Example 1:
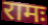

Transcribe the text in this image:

रामः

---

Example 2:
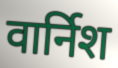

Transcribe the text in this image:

वार्निश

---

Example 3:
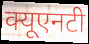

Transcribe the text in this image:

क्यूएनटी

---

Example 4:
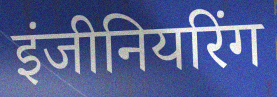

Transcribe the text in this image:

इंजीनियरिंग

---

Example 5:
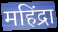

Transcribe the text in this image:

महिंद्रा